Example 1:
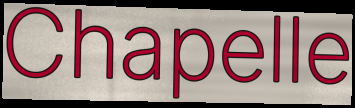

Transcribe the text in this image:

Chapelle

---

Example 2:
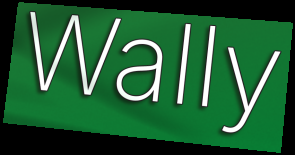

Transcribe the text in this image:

Wally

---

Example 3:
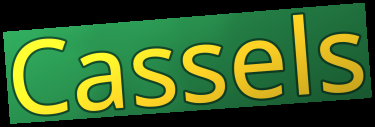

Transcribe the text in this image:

Cassels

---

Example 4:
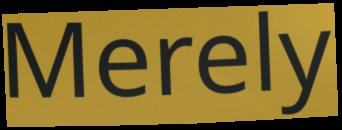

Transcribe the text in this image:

Merely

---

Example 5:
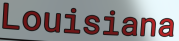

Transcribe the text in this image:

Louisiana